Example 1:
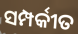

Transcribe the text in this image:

ସମ୍ପର୍କୀତ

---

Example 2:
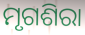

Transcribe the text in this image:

ମୃଗଶିରା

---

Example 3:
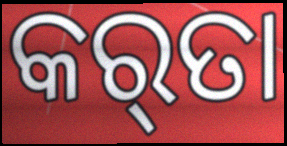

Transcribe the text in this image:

କର୍‌ତା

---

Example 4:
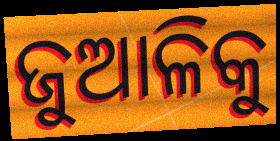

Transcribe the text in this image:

ଜୁଆଳିକୁ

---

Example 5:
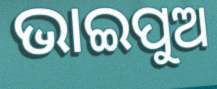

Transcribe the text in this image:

ଭାଇପୁଅ